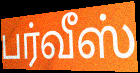
பர்வீஸ்